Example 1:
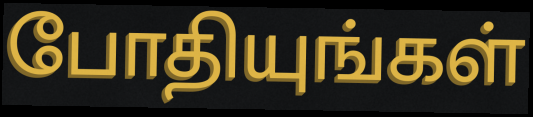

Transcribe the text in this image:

போதியுங்கள்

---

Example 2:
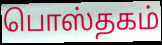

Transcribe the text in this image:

பொஸ்தகம்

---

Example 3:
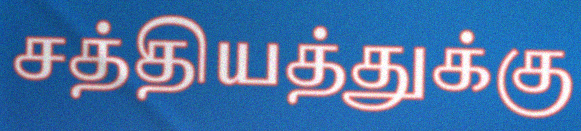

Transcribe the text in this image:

சத்தியத்துக்கு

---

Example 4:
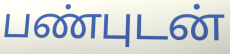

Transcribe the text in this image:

பண்புடன்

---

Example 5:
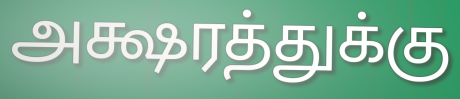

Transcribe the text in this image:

அக்ஷரத்துக்கு